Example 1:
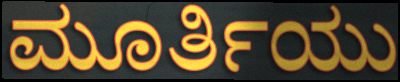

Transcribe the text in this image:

ಮೂರ್ತಿಯು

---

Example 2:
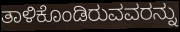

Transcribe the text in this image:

ತಾಳಿಕೊಂಡಿರುವವರನ್ನು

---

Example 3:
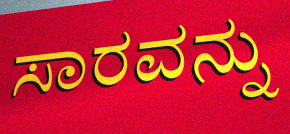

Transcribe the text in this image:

ಸಾರವನ್ನು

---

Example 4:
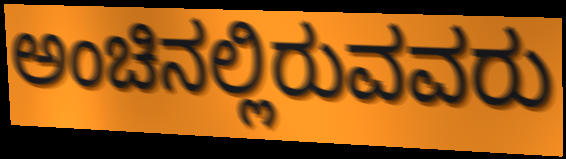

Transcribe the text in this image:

ಅಂಚಿನಲ್ಲಿರುವವರು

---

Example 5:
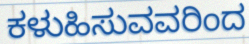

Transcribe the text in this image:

ಕಳುಹಿಸುವವರಿಂದ